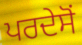
ਪਰਦੇਸੋਂ